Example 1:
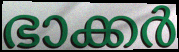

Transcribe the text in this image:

ഭാക്കർ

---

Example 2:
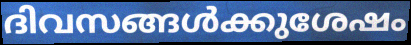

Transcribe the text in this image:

ദിവസങ്ങൾക്കുശേഷം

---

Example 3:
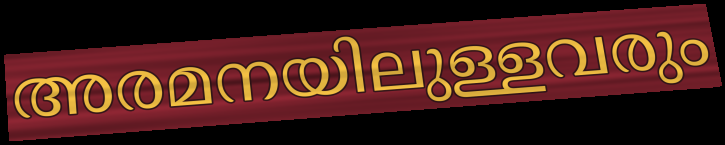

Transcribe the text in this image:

അരമനയിലുള്ളവരും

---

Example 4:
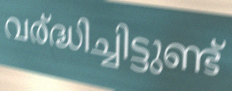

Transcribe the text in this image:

വര്ദ്ധിച്ചിട്ടുണ്ട്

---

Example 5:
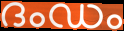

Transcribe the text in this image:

ദംഡം